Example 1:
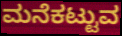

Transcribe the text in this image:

ಮನೆಕಟ್ಟುವ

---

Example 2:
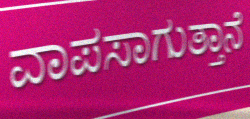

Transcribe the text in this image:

ವಾಪಸಾಗುತ್ತಾನೆ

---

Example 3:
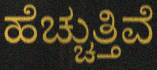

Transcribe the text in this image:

ಹೆಚ್ಚುತ್ತಿವೆ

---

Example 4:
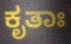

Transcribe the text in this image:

ಕೃತಾಃ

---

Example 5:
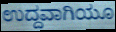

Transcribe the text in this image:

ಉದ್ದವಾಗಿಯೂ